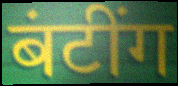
बंटींग